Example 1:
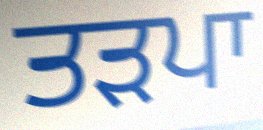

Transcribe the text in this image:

ਤੜਪਾ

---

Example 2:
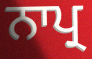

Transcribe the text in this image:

ਨਾਪ੍ਰ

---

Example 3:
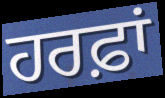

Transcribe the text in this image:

ਹਰਫ਼ਾਂ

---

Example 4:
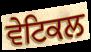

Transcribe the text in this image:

ਵੇਟਿਕਲ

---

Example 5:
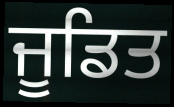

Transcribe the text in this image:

ਜੂਡਿਤ